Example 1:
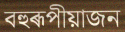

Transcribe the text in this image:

বহুৰূপীয়াজন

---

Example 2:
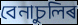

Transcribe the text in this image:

বেনাচুলিৰ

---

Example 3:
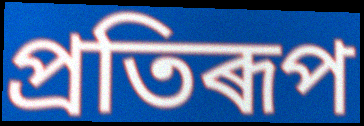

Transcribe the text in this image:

প্ৰতিৰূপ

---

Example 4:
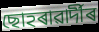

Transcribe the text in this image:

ছোহৰাৱাৰ্দীৰ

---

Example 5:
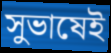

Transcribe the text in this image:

সুভাষেই